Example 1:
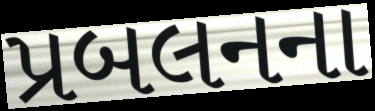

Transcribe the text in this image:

પ્રબલનના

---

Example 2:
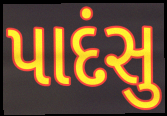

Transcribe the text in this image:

પાદંસુ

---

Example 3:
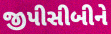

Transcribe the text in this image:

જીપીસીબીને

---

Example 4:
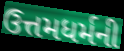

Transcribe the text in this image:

ઉત્તમધર્મની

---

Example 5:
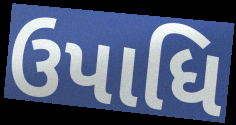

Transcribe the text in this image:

ઉપાધિ